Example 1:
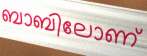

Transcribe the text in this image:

ബാബിലോണ്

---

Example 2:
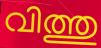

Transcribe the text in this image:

വിത്തു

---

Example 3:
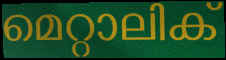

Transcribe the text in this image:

മെറ്റാലിക്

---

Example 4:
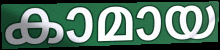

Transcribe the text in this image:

കാമായ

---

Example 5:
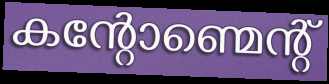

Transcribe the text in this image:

കന്റോണ്മെന്റ്